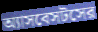
অ্যাসবেসটসের